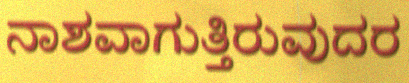
ನಾಶವಾಗುತ್ತಿರುವುದರ